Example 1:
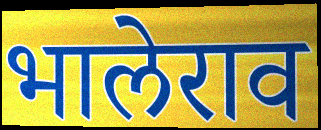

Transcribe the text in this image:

भालेराव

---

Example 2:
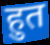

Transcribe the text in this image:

हुत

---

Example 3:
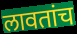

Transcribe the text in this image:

लावतांच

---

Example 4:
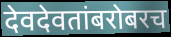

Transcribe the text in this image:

देवदेवतांबरोबरच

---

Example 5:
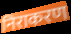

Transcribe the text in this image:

निराकरण